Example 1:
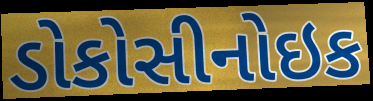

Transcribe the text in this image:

ડોકોસીનોઇક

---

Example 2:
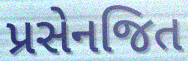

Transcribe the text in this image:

પ્રસેનજિત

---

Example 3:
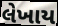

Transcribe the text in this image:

લેખાય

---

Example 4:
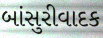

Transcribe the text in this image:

બાંસુરીવાદક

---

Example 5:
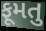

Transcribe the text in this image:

ફૂમતુ